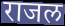
राजल